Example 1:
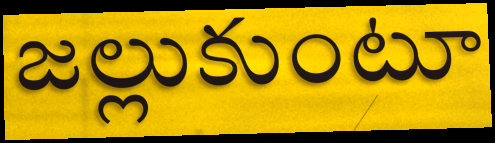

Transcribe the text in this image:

జల్లుకుంటూ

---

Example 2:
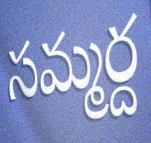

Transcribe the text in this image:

సమ్మర్ద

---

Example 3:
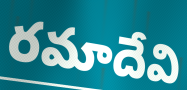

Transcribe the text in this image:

రమాదేవి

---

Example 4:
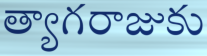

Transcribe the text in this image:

త్యాగరాజుకు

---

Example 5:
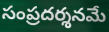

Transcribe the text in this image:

సంప్రదర్శనమే